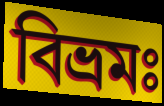
বিভ্রমঃ